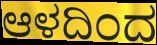
ಆಳದಿಂದ